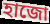
হাজো